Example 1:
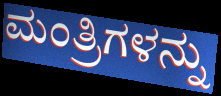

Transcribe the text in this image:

ಮಂತ್ರಿಗಳನ್ನು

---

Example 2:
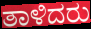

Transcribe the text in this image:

ತಾಳಿದರು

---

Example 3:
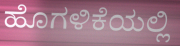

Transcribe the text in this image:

ಹೊಗಳಿಕೆಯಲ್ಲಿ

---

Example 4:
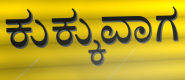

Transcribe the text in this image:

ಕುಕ್ಕುವಾಗ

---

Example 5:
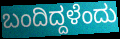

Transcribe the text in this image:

ಬಂದಿದ್ದಳೆಂದು